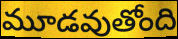
మూడవుతోంది